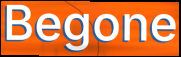
Begone